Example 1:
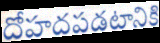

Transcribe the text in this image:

దోహదపడటానికి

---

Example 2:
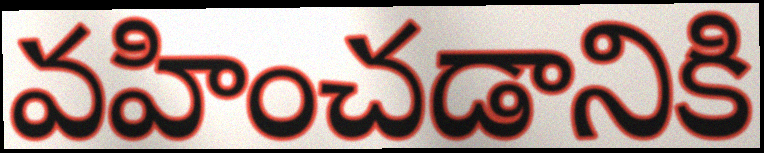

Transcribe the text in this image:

వహించడానికి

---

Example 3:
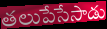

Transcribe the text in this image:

తలుపేసేసాడు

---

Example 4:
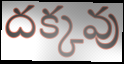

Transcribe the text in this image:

దక్కవు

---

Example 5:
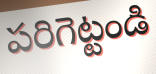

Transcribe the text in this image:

పరిగెట్టండి